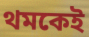
থমকেই